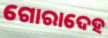
ଗୋରାଦେହ